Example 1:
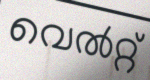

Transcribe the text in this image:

വെൽറ്റ്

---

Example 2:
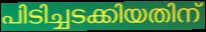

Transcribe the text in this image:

പിടിച്ചടക്കിയതിന്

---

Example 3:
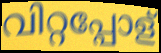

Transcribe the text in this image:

വിറ്റപ്പോള്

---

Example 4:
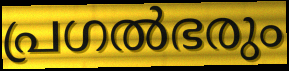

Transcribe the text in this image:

പ്രഗൽഭരും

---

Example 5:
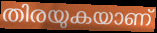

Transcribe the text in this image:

തിരയുകയാണ്